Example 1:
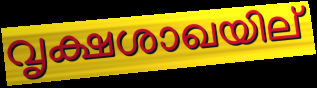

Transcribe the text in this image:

വൃക്ഷശാഖയില്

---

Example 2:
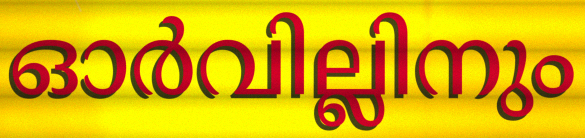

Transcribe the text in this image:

ഓർവില്ലിനും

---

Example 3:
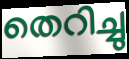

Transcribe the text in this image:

തെറിച്ചു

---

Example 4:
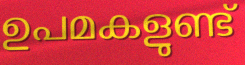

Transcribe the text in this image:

ഉപമകളുണ്ട്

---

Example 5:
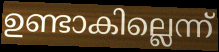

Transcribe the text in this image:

ഉണ്ടാകില്ലെന്ന്